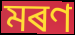
মৰণ